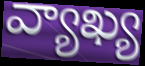
వ్యాఖ్య